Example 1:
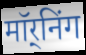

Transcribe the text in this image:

मॉर्निंग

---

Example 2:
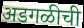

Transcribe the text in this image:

अडगळीची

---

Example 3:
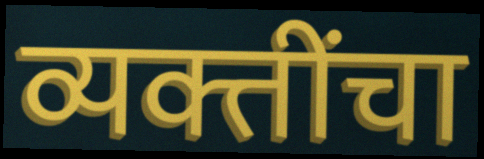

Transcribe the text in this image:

व्यक्तींचा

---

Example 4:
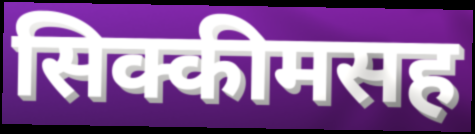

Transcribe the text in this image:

सिक्कीमसह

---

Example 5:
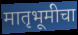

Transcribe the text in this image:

मातृभूमीचा